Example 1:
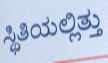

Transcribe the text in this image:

ಸ್ಥಿತಿಯಲ್ಲಿತ್ತು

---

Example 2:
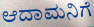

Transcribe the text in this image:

ಆದಾಮನಿಗೆ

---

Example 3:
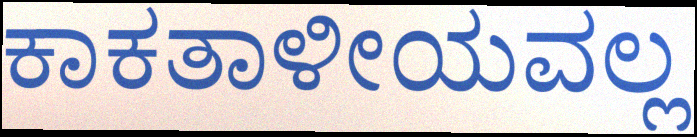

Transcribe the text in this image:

ಕಾಕತಾಳೀಯವಲ್ಲ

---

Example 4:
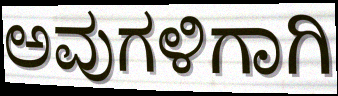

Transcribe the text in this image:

ಅವುಗಳಿಗಾಗಿ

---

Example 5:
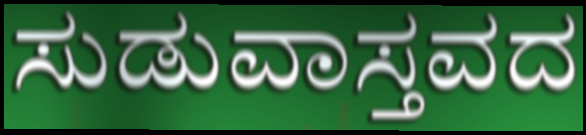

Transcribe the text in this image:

ಸುಡುವಾಸ್ತವದ